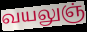
வயலுஞ்